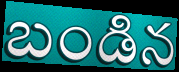
బండిన